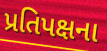
પ્રતિપક્ષના